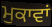
ਮੁਕਾਵਾਂ